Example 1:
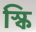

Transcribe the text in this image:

স্কি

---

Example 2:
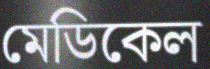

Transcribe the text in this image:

মেডিকেল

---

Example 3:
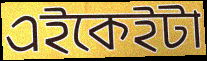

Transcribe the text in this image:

এইকেইটা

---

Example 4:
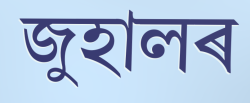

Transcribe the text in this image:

জুহালৰ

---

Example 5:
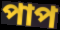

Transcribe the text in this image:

পাপ